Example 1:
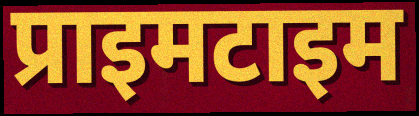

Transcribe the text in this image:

प्राइमटाइम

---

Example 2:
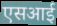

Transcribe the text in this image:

एसआई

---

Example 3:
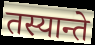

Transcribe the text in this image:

तस्यान्ते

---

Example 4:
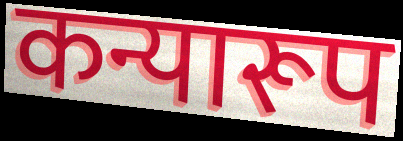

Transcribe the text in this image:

कन्यारूप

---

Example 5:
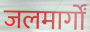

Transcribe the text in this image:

जलमार्गों